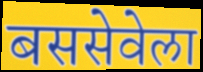
बससेवेला